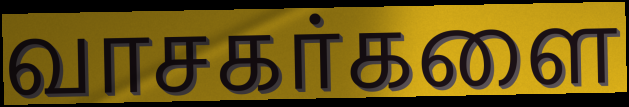
வாசகர்களை